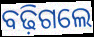
ବଢ଼ିଗଲେ